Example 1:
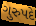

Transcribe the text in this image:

ગુરુપદે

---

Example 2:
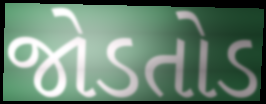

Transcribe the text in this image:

જોડતોડ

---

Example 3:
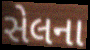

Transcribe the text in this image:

સેલના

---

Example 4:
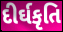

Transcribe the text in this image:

દીર્ઘકૃતિ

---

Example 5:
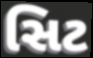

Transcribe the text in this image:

સિટ